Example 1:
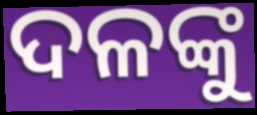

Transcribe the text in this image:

ଦଳଙ୍କୁ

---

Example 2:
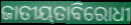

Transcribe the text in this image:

ଜାତୀୟତାବିରୋଧୀ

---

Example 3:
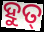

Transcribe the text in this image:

ହୁତ୍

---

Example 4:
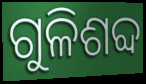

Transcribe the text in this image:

ଗୁଳିଶବ୍ଦ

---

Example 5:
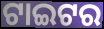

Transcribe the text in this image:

ଟାଇଟର